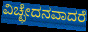
ವಿಚ್ಛೇದನವಾದರೆ